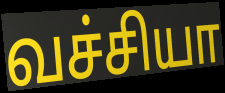
வச்சியா